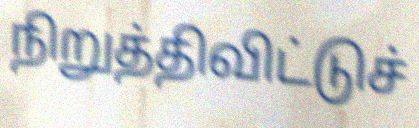
நிறுத்திவிட்டுச்